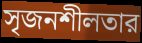
সৃজনশীলতার